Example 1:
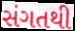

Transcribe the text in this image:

સંગતથી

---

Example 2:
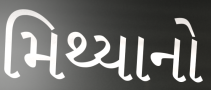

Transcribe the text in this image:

મિથ્યાનો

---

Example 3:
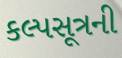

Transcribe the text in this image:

કલ્પસૂત્રની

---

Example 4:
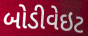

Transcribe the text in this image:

બોડીવેઇટ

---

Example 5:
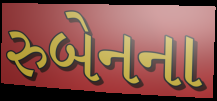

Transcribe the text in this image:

રુબેનના